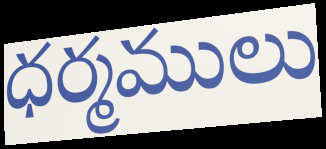
ధర్మములు